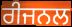
ਰੀਜਨਲ